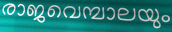
രാജവെമ്പാലയും